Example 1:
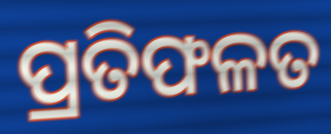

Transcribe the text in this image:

ପ୍ରତିଫଳତ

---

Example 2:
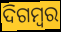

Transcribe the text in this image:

ଦିଗମ୍ୱର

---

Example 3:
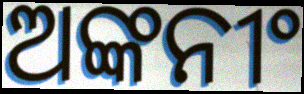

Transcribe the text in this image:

ଅଙ୍କନୀଂ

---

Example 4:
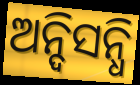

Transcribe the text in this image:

ଅନ୍ଦିସନ୍ଧି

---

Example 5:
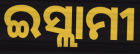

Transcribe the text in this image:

ଇସ୍ଲାମୀ